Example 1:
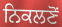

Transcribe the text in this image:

ਨਿਕਲਣੋਂ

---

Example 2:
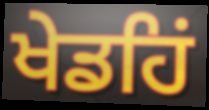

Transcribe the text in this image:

ਖੇਡਹਿਂ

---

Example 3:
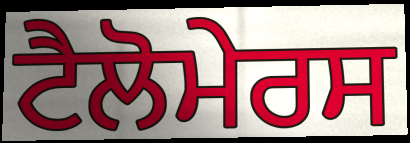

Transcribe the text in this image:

ਟੈਲੋਮੇਰਸ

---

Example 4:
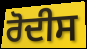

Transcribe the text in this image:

ਰੋਦੀਸ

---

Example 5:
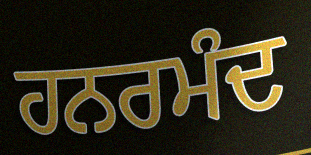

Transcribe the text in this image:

ਹਨਰਮੰਦ